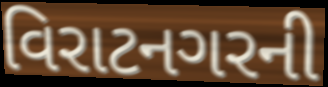
વિરાટનગરની